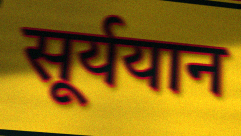
सूर्ययान